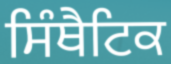
ਸਿੰਥੈਟਿਕ